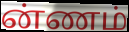
ன்ணம்